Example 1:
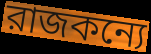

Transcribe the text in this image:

রাজকন্যে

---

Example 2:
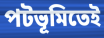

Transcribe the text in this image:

পটভূমিতেই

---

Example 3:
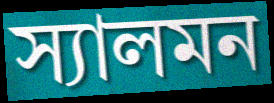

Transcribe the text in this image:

স্যালমন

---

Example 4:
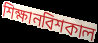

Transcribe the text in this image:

শিক্ষানবিশকাল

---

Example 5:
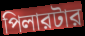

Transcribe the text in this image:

পিলারটার